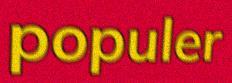
populer